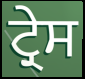
ਟ੍ਰੇਸ